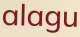
alagu